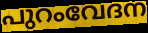
പുറംവേദന